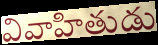
వివాహితుడు